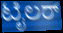
ಟೈಲರ್